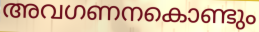
അവഗണനകൊണ്ടും